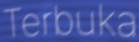
Terbuka